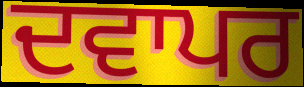
ਦਵਾਪਰ